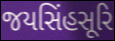
જયસિંહસૂરિ